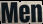
Men